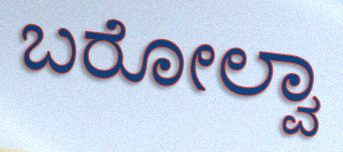
ಬರೋಲ್ವಾ